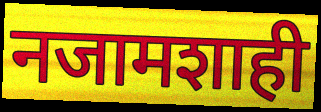
नजामशाही